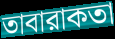
তাবারাকতা